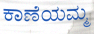
ಕಾಣೆಯಮ್ಮ